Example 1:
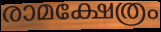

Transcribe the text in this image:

രാമക്ഷേത്രം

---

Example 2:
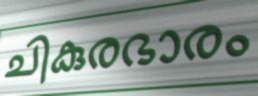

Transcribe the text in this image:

ചികുരഭാരം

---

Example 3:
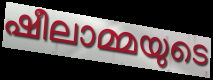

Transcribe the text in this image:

ഷീലാമ്മയുടെ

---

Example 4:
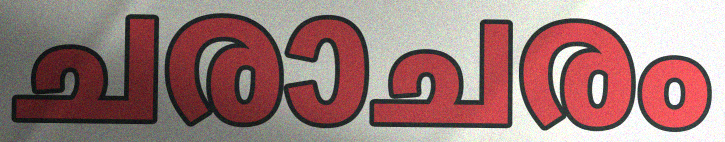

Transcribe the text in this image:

ചരാചരം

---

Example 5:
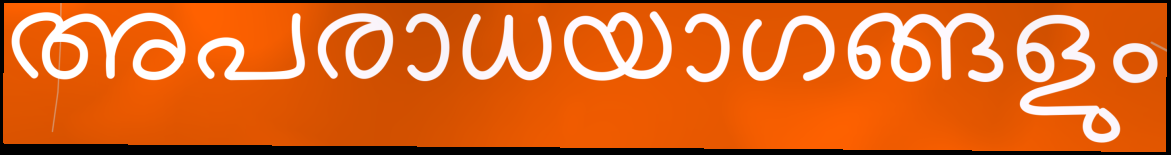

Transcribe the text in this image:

അപരാധയാഗങ്ങളും